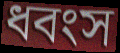
ধবংস